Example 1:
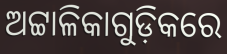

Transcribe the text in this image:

ଅଟ୍ଟାଳିକାଗୁଡ଼ିକରେ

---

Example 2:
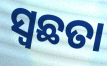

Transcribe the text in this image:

ସ୍ବଛତା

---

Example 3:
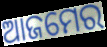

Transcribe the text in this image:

ଆଜମେର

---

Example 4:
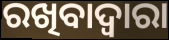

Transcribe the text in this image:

ରଖିବାଦ୍ୱାରା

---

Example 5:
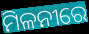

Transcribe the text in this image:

ମିଳନୀରେ